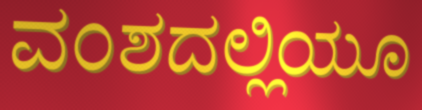
ವಂಶದಲ್ಲಿಯೂ